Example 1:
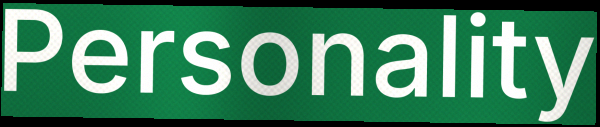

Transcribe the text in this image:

Personality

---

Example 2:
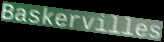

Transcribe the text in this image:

Baskervilles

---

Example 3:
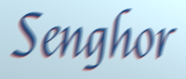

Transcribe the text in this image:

Senghor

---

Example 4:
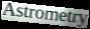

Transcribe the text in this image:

Astrometry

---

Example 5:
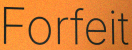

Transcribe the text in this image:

Forfeit